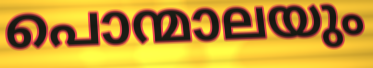
പൊന്മാലയും